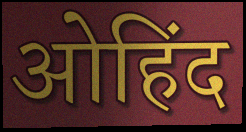
ओहिंद